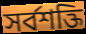
সর্বশক্তি